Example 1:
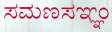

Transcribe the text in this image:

ಸಮಣಸಞ್ಞಂ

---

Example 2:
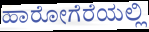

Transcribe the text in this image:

ಹಾರೋಗೆರೆಯಲ್ಲಿ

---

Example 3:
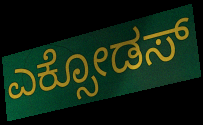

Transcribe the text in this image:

ಎಕ್ಸೋಡಸ್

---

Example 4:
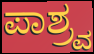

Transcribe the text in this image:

ಪಾಶ್ರ್ವ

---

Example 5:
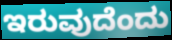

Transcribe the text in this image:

ಇರುವುದೆಂದು